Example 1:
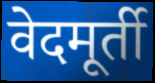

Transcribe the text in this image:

वेदमूर्ती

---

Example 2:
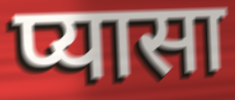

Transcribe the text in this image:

प्यासा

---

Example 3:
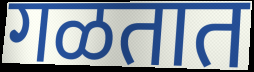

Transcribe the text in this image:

गळतात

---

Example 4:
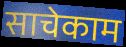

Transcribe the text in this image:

साचेकाम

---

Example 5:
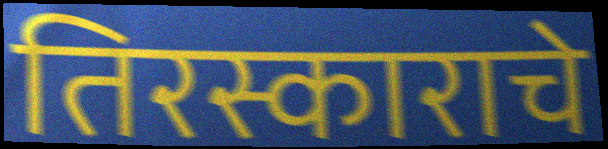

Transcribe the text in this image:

तिरस्काराचे